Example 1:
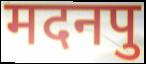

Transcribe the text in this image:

मदनपु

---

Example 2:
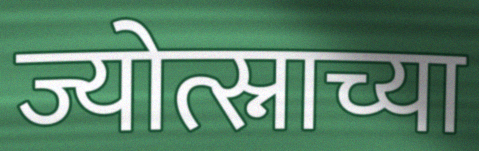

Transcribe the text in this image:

ज्योत्स्नाच्या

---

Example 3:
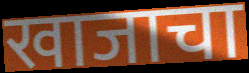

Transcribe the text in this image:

खाजाचा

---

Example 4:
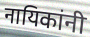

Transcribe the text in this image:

नायिकांनी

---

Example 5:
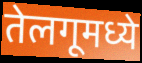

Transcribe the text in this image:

तेलगूमध्ये